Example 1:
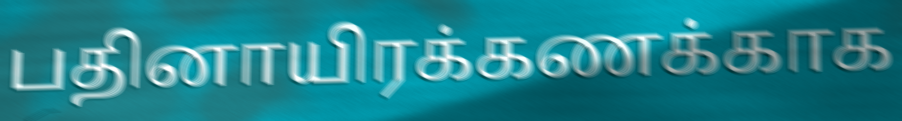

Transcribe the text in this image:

பதினாயிரக்கணக்காக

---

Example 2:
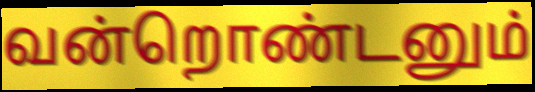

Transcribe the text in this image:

வன்றொண்டனும்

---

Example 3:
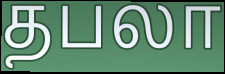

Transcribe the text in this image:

தபலா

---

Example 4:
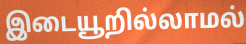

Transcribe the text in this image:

இடையூறில்லாமல்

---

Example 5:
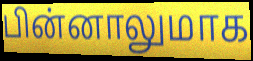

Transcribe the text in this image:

பின்னாலுமாக